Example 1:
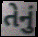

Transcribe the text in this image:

તેનું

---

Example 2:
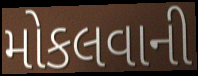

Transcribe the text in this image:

મોકલવાની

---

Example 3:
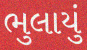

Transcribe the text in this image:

ભુલાયું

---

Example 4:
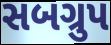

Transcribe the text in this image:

સબગ્રુપ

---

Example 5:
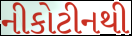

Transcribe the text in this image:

નીકોટીનથી